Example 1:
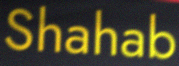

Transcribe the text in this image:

Shahab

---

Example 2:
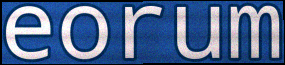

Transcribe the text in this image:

eorum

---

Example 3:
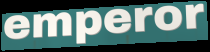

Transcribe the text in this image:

emperor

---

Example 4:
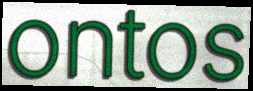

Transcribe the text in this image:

ontos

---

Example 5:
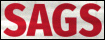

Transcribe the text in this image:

SAGS